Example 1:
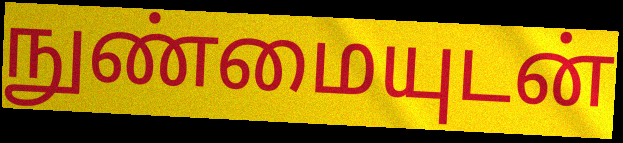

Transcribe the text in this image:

நுண்மையுடன்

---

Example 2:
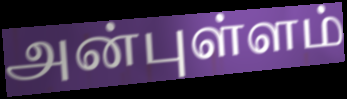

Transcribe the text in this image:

அன்புள்ளம்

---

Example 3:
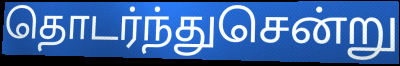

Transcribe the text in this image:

தொடர்ந்துசென்று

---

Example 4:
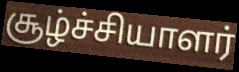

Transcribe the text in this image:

சூழ்ச்சியாளர்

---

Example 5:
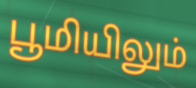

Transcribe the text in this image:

பூமியிலும்